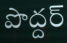
పొద్దర్